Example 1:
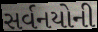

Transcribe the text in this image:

સર્વનયોની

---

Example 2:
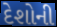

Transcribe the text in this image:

દેશોની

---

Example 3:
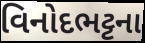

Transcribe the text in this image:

વિનોદભટ્ટના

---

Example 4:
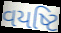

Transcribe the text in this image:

વયષ્ટિ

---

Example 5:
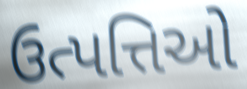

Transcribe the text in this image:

ઉત્પત્તિઓ